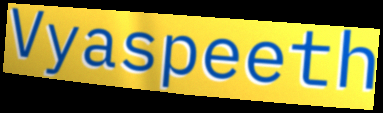
Vyaspeeth